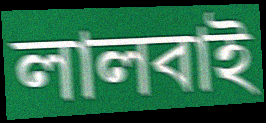
লালবাই